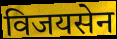
विजयसेन